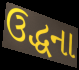
ઉદ્ધના